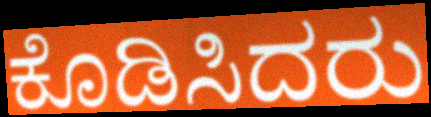
ಕೊಡಿಸಿದರು